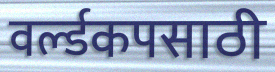
वर्ल्डकपसाठी